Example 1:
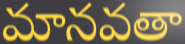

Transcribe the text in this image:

మానవతా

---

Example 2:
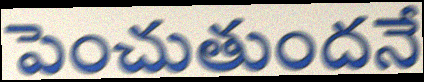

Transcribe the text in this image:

పెంచుతుందనే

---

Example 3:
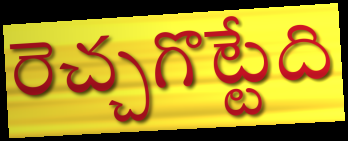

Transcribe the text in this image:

రెచ్చగొట్టేది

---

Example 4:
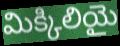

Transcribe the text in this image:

మిక్కిలియై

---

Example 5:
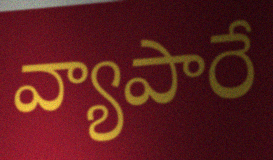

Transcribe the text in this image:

వ్యాపారే